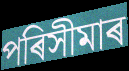
পৰিসীমাৰ